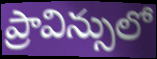
ప్రావిన్సులో